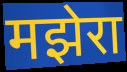
मझेरा